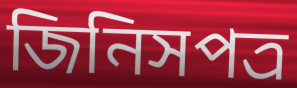
জিনিসপত্র